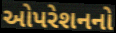
ઓપરેશનનો